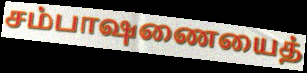
சம்பாஷணையைத்